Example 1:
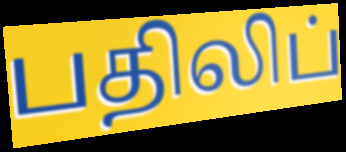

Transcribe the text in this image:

பதிலிப்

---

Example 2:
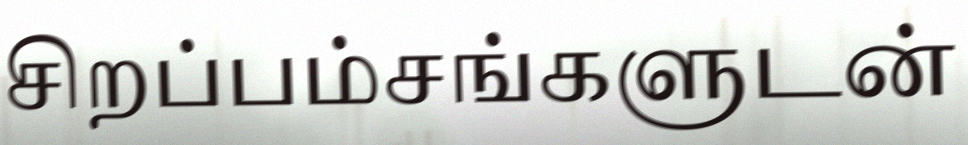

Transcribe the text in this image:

சிறப்பம்சங்களுடன்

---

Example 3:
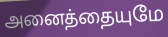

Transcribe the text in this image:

அனைத்தையுமே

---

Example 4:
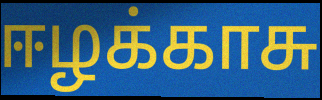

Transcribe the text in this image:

ஈழக்காசு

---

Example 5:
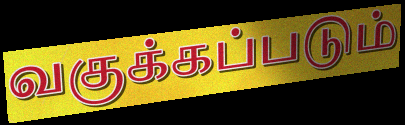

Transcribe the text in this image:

வகுக்கப்படும்